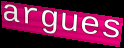
argues